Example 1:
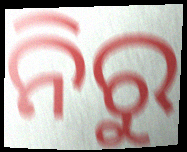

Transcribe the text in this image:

ନିରୁ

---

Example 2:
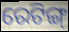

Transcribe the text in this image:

ରେଟିଙ୍ଗ୍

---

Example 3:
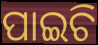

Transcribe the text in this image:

ପାଇଚି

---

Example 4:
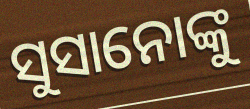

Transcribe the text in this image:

ସୁସାନୋଙ୍କୁ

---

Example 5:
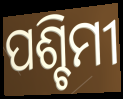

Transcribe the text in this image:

ପଶ୍ଚିମୀ